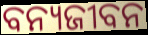
ବନ୍ୟଜୀବନ